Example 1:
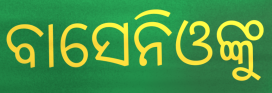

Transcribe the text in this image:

ବାସେନିଓଙ୍କୁ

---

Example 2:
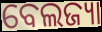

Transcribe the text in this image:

ବେଲଜ୍ୟା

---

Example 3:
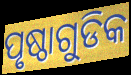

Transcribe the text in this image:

ପୃଷ୍ଠାଗୁଡିକ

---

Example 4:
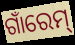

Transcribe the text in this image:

ଗାଁରେମ୍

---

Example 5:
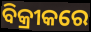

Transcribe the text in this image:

ବିକ୍ରୀକରେ